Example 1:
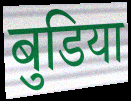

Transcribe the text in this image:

बुडिया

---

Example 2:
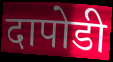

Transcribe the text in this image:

दापोडी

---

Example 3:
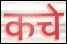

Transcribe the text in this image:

कचे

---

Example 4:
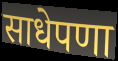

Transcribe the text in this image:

साधेपणा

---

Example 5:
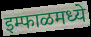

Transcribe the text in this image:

इम्फाळमध्ये